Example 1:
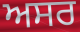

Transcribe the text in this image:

ਅਸਰ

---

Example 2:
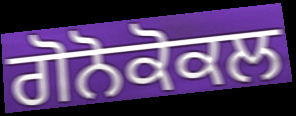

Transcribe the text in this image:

ਗੋਨੋਕੋਕਲ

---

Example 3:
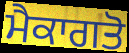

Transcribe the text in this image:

ਮੈਕਾਗਤੋ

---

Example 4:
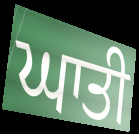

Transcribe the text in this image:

ਘਾਤੀ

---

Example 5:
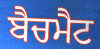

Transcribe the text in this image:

ਬੈਚਮੈਟ